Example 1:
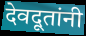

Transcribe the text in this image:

देवदूतांनी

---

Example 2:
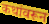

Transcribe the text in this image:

कथांवरून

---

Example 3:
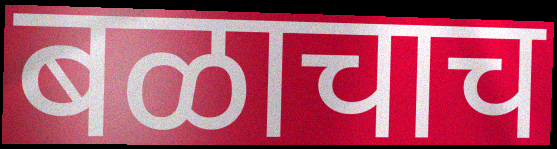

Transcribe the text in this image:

बळाचाच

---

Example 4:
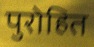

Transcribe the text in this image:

पुरोहित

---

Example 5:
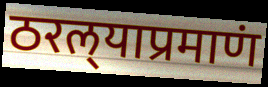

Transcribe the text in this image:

ठरल्याप्रमाणं